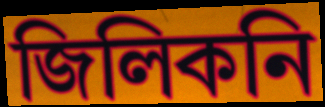
জিলিকনি